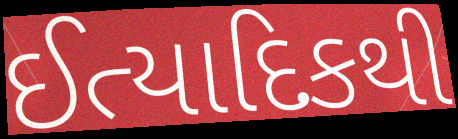
ઈત્યાદિકથી